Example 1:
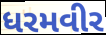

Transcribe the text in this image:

ધરમવીર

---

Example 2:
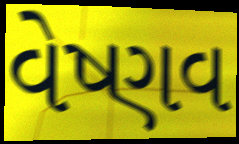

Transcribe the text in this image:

વેષ્ણવ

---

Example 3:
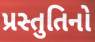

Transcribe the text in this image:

પ્રસ્તુતિનો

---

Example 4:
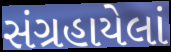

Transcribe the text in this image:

સંગ્રહાયેલાં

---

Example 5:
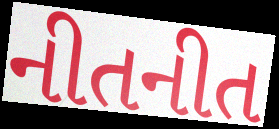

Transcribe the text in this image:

નીતનીત